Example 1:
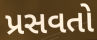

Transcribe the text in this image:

પ્રસવતો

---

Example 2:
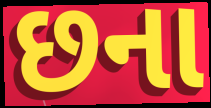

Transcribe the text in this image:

છના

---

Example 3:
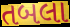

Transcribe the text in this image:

તબલા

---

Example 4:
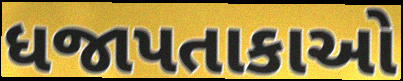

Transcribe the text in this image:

ધજાપતાકાઓ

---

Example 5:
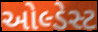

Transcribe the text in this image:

ઓલ્ડેસ્ટ